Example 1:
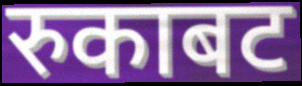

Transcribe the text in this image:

रुकाबट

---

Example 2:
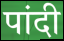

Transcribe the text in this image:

पांदी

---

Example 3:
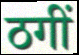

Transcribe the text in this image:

ठगीं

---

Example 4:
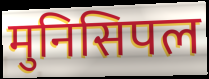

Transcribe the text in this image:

मुनिसिपल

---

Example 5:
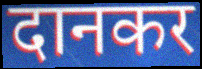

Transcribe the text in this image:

दानकर